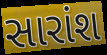
સારાંશ